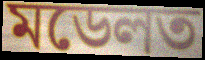
মডেলত